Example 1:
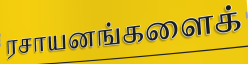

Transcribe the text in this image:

ரசாயனங்களைக்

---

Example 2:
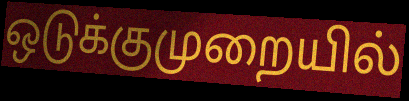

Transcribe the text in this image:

ஒடுக்குமுறையில்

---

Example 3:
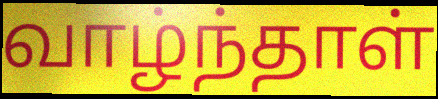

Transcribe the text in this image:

வாழ்ந்தாள்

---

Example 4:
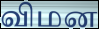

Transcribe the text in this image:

விமன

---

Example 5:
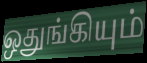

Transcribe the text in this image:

ஒதுங்கியும்